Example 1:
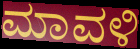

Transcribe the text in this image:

ಮಾವಳಿ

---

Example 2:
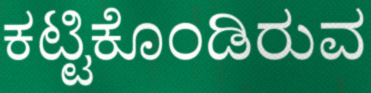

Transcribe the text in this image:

ಕಟ್ಟಿಕೊಂಡಿರುವ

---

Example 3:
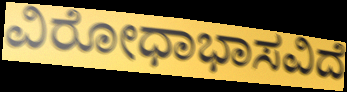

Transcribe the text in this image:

ವಿರೋಧಾಭಾಸವಿದೆ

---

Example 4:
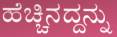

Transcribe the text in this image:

ಹೆಚ್ಚಿನದ್ದನ್ನು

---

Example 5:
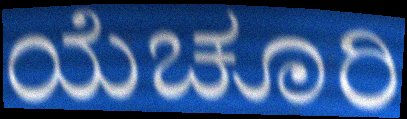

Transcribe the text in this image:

ಯೆಚೂರಿ